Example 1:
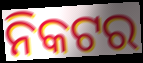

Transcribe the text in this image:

ନିକଟର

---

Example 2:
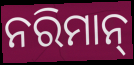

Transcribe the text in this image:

ନରିମାନ୍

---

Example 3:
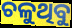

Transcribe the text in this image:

ଚଳୁଥିବୁ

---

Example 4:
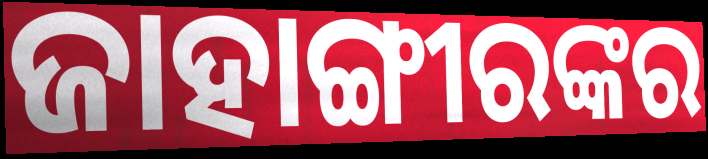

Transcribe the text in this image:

ଜାହାଙ୍ଗୀରଙ୍କର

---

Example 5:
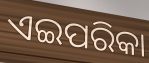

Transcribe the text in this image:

ଏଇପରିକା